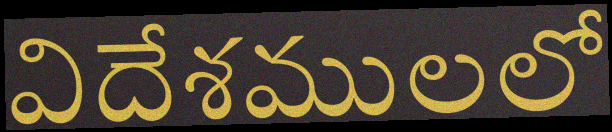
విదేశములలో